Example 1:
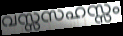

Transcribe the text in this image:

വസ്സസഹസ്സം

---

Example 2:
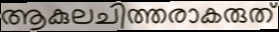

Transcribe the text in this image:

ആകുലചിത്തരാകരുത്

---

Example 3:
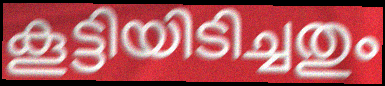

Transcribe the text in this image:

കൂട്ടിയിടിച്ചതും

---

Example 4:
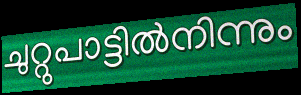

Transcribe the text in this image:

ചുറ്റുപാട്ടിൽനിന്നും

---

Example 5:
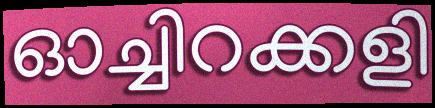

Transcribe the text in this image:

ഓച്ചിറക്കളി